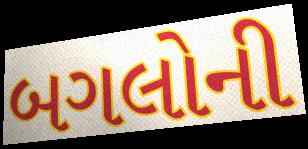
બગલોની